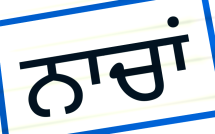
ਨਾਚਾਂ